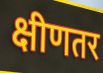
क्षीणतर